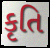
કૃતિ